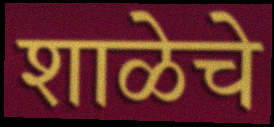
शाळेचे